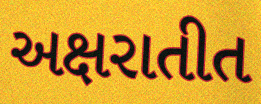
અક્ષરાતીત